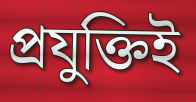
প্রযুক্তিই